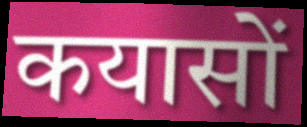
कयासों